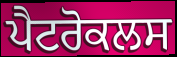
ਪੈਟਰੋਕਲਸ